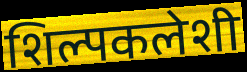
शिल्पकलेशी